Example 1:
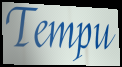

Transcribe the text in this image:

Tempu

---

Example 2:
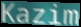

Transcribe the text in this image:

Kazim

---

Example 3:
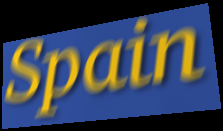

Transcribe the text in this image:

Spain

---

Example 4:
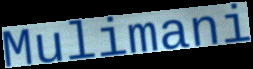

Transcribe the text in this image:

Mulimani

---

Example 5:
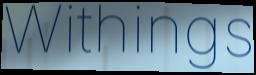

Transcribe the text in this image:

Withings